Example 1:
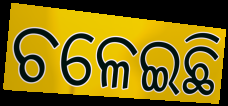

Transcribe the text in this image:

ଚଳେଇଛି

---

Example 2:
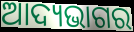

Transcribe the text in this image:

ଆଦ୍ୟଭାଗର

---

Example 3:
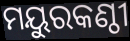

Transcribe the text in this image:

ମୟୁରକଣ୍ଠୀ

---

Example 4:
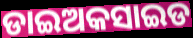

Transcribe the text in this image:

ଡାଇଅକସାଇଡ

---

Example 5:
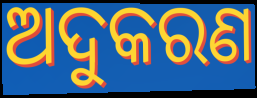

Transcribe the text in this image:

ଅଦୁକରଣ